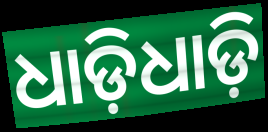
ଧାଡ଼ିଧାଡ଼ି